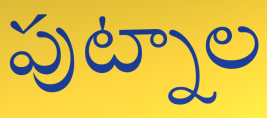
పుట్నాల